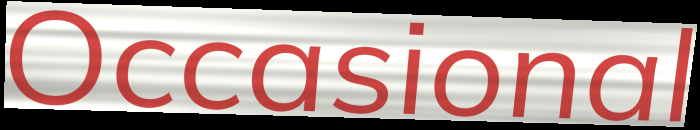
Occasional